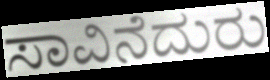
ಸಾವಿನೆದುರು